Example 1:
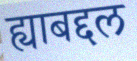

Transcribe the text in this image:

ह्याबद्दल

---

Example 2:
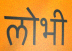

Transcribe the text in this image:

लोभी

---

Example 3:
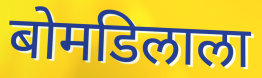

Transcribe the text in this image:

बोमडिलाला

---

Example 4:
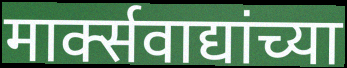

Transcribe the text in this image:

मार्क्सवाद्यांच्या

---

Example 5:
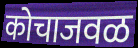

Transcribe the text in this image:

कोचाजवळ